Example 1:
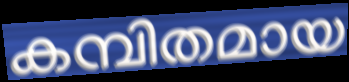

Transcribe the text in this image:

കമ്പിതമായ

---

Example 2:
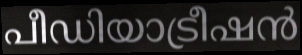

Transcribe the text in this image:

പീഡിയാട്രീഷൻ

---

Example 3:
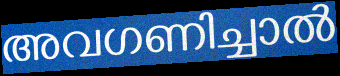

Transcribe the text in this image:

അവഗണിച്ചാൽ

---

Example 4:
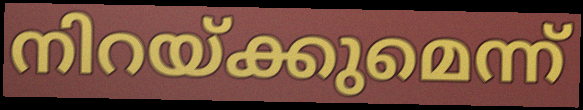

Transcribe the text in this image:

നിറയ്ക്കുമെന്ന്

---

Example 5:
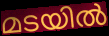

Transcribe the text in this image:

മടയിൽ